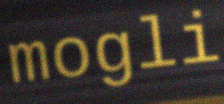
mogli